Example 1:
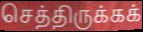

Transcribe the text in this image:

செத்திருக்கக்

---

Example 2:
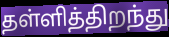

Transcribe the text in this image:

தள்ளித்திறந்து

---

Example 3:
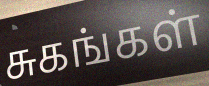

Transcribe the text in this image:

சுகங்கள்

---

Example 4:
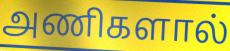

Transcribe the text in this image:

அணிகளால்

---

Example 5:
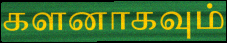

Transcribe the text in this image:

களனாகவும்